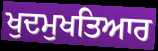
ਖੁਦਮੁਖਤਿਆਰ